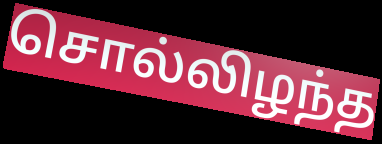
சொல்லிழந்த